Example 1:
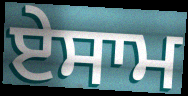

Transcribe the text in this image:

ਏਸਾਮ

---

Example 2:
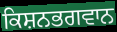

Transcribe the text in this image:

ਕਿਸ਼ਨਭਗਵਾਨ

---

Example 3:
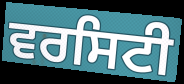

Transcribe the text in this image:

ਵਰਸਿਟੀ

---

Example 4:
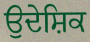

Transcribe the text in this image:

ਉਦੇਸ਼ਿਕ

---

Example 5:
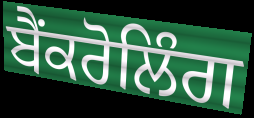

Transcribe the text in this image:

ਬੈਂਕਰੋਲਿੰਗ